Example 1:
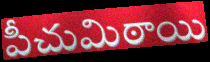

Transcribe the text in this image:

పీచుమిఠాయి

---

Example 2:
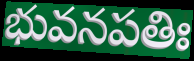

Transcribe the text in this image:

భువనపతిః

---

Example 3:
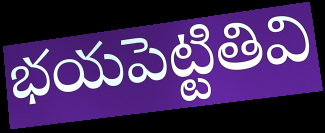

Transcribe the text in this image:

భయపెట్టితివి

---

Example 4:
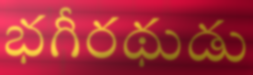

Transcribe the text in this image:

భగీరథుడు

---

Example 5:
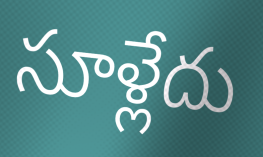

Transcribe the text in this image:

సూళ్లేదు